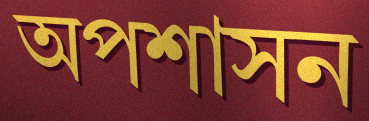
অপশাসন